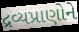
દ્રવ્યપ્રાણોને